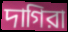
দাগিরা